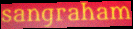
sangraham